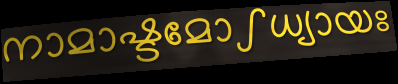
നാമാഷ്ടമോഽധ്യായഃ